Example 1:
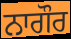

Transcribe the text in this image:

ਨਾਗੌਰ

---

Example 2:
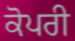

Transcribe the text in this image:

ਕੋਪਰੀ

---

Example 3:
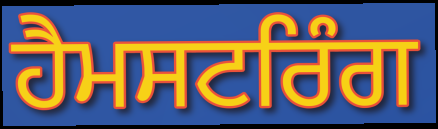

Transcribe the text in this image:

ਹੈਮਸਟਰਿੰਗ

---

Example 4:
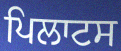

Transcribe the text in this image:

ਪਿਲਾਟਸ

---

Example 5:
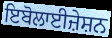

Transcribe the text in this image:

ਇਬੋਲਾਈਜ਼ੇਸ਼ਨ